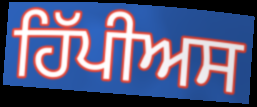
ਹਿੱਪੀਅਸ